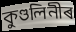
কুণ্ডলিনীৰ